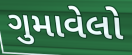
ગુમાવેલો